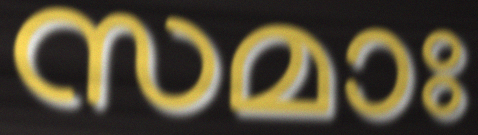
സമാഃ